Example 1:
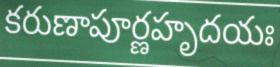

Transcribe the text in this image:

కరుణాపూర్ణహృదయః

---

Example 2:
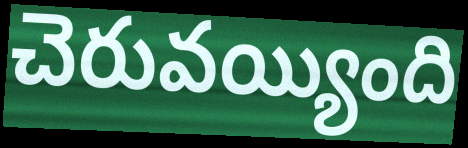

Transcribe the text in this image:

చెరువయ్యింది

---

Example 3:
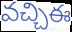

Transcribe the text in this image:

వచ్చిఈ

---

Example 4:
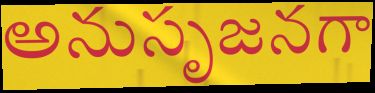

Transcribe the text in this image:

అనుసృజనగా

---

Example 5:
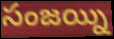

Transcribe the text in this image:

సంజయ్ని